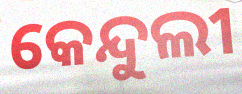
କେନ୍ଦୁଲୀ